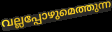
വല്ലപ്പോഴുമെത്തുന്ന